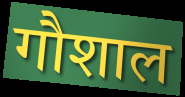
गौशाल